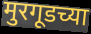
मुरगूडच्या